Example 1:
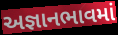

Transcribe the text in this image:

અજ્ઞાનભાવમાં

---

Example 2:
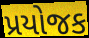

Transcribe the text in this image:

પ્રયોજક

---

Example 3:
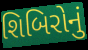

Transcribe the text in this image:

શિબિરોનું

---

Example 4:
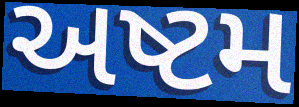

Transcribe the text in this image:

અષ્ટમ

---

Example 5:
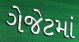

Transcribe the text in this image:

ગેજેટમાં